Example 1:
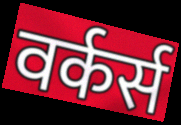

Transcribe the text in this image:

वर्कर्स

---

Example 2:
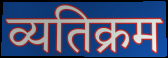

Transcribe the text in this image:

व्यतिक्रम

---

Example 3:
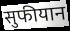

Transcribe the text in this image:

सुफीयान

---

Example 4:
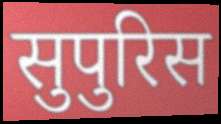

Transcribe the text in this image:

सुपुरिस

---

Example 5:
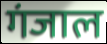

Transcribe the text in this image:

गंजाल